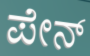
ಪೇನ್